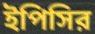
ইপিসির